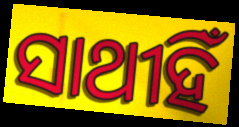
ସାଥୀହିଁ